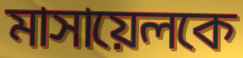
মাসায়েলকে